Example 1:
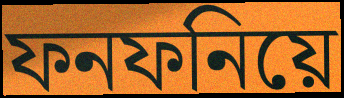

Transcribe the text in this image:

ফনফনিয়ে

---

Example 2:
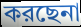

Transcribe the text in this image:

করছেনা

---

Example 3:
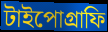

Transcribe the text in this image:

টাইপোগ্রাফি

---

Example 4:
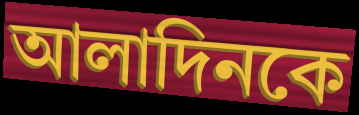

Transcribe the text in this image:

আলাদিনকে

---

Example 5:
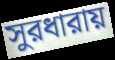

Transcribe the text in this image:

সুরধারায়